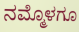
ನಮ್ಮೊಳಗೂ